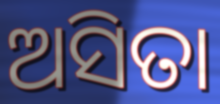
ଅସିତା